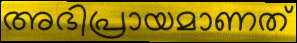
അഭിപ്രായമാണത്